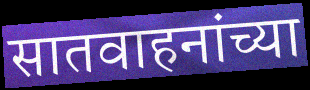
सातवाहनांच्या